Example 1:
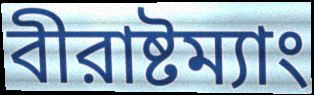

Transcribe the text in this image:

বীরাষ্টম্যাং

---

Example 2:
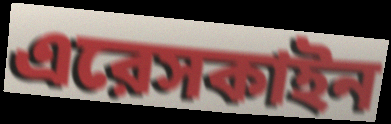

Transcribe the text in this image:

এরেসকাইন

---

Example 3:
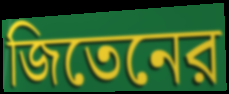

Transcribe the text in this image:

জিতেনের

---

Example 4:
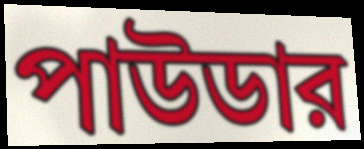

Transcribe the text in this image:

পাউডার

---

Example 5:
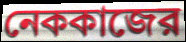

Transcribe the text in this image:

নেককাজের